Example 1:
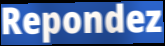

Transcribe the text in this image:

Repondez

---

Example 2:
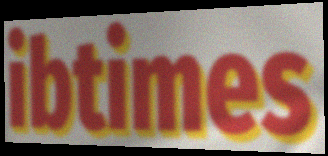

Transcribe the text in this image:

ibtimes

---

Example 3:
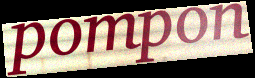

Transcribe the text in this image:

pompon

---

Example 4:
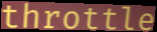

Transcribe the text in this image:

throttle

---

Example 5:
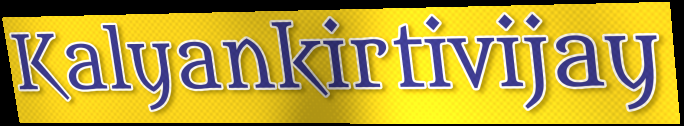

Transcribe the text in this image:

Kalyankirtivijay